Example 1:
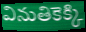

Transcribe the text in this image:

వినుతికెక్కి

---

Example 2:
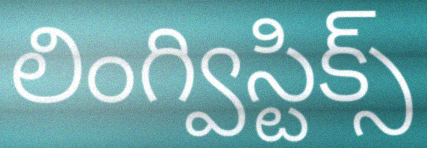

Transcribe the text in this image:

లింగ్విస్టిక్స్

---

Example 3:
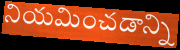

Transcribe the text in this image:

నియమించడాన్ని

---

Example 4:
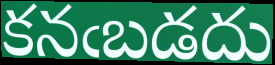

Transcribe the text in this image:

కనఁబడదు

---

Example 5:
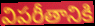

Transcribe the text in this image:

విపరీతానికి